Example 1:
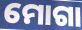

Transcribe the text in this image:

ମୋଗା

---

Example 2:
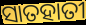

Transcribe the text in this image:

ସାତହାତୀ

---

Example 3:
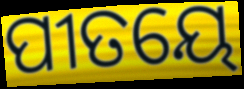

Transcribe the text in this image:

ପୀତୟେ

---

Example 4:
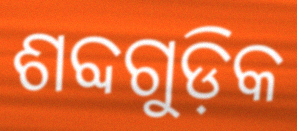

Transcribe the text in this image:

ଶବ୍ଦଗୁଡ଼ିକ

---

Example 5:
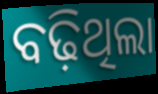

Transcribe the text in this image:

ବଢ଼ିଥିଲା